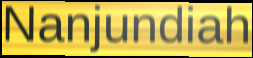
Nanjundiah